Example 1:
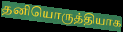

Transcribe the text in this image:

தனியொருத்தியாக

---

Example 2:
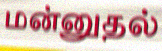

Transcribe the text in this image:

மன்னுதல்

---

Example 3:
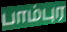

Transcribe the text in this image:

பாம்புர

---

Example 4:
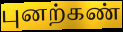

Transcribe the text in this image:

புனற்கண்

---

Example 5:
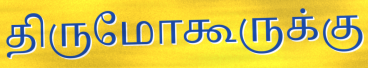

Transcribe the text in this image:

திருமோகூருக்கு